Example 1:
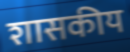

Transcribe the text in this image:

शासकीय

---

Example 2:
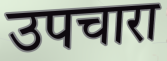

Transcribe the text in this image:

उपचारा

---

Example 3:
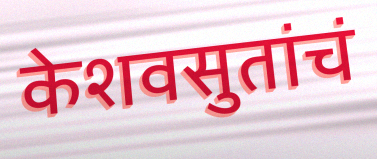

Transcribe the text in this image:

केशवसुतांचं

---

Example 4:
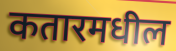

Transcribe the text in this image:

कतारमधील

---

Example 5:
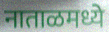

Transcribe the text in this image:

नाताळमध्ये